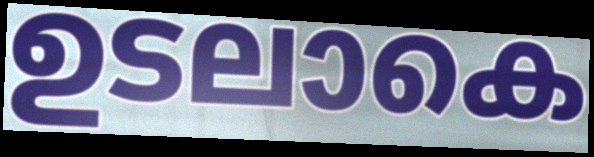
ഉടലാകെ